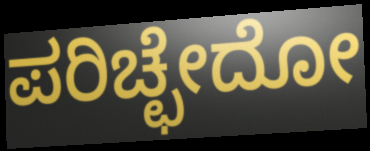
ಪರಿಚ್ಛೇದೋ